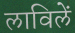
लाविलें